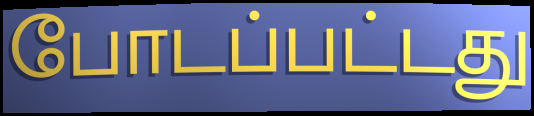
போடப்பட்டது